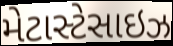
મેટાસ્ટેસાઇઝ